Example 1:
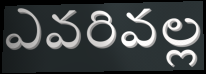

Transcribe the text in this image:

ఎవరివల్ల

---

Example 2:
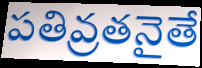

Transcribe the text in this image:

పతివ్రతనైతే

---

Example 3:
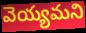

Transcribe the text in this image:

వెయ్యమని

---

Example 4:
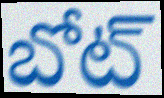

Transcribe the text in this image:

బోట్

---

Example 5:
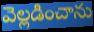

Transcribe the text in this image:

వెల్లడించాను